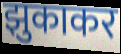
झुकाकर